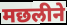
मछलीने